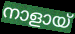
നാളായ്